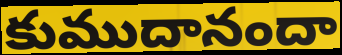
కుముదానందా